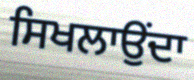
ਸਿਖਲਾਉਂਦਾ